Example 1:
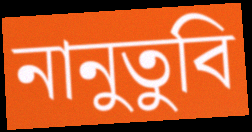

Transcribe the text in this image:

নানুতুবি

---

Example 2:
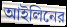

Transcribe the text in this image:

আইলিনের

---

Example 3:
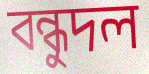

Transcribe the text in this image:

বন্ধুদল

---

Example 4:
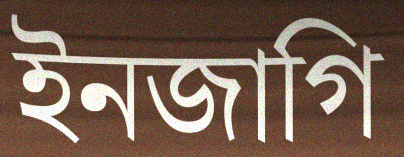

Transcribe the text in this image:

ইনজাগি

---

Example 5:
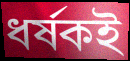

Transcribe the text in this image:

ধর্ষকই